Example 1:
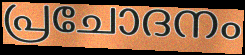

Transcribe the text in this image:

പ്രചോദനം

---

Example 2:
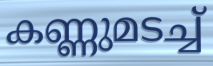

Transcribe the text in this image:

കണ്ണുമടച്ച്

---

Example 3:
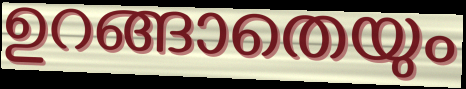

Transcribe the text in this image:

ഉറങ്ങാതെയും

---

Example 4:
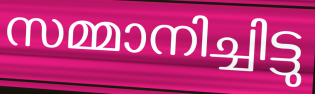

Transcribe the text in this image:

സമ്മാനിച്ചിട്ടു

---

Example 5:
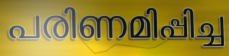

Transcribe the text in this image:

പരിണമിപ്പിച്ച